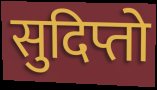
सुदिप्तो